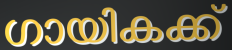
ഗായികക്ക്